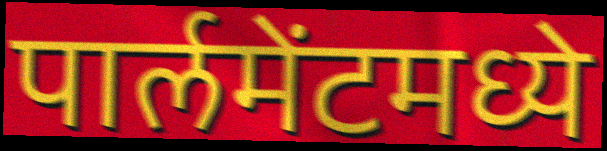
पार्लमेंटमध्ये